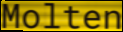
Molten